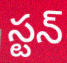
స్టన్